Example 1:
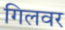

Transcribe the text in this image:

गिलवर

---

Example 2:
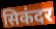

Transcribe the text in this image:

सिकंदर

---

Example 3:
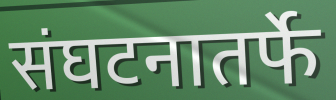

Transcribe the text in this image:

संघटनातर्फे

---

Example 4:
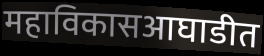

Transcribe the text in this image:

महाविकासआघाडीत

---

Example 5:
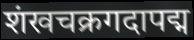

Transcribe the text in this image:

शंखचक्रगदापद्म